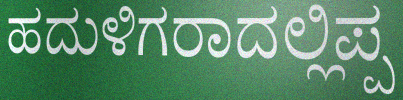
ಹದುಳಿಗರಾದಲ್ಲಿಪ್ಪ